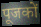
पूजकों